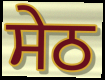
ਸੇਠ